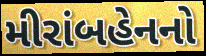
મીરાંબહેનનો